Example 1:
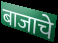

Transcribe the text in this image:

बाजाचे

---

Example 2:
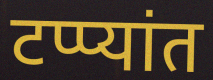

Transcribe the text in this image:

टप्प्यांत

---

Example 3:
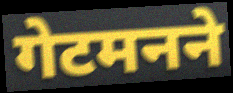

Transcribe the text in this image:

गेटमनने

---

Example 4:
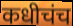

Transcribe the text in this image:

कधीचंच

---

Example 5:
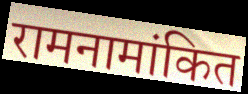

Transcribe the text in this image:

रामनामांकित